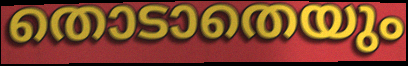
തൊടാതെയും